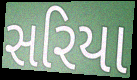
સરિયા